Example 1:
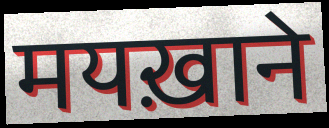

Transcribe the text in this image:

मयख़ाने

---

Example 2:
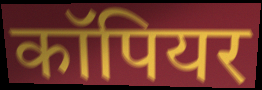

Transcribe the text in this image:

कॉपियर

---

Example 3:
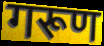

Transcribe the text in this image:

गरूण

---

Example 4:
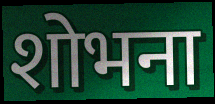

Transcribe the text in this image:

शोभना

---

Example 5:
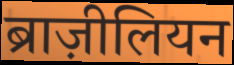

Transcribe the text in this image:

ब्राज़ीलियन